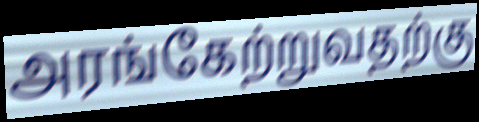
அரங்கேற்றுவதற்கு